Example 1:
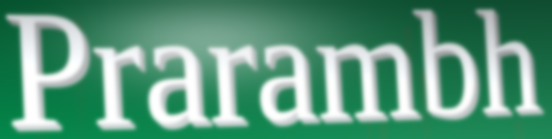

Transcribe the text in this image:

Prarambh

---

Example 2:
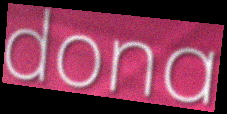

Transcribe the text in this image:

dona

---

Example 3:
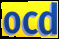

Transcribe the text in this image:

ocd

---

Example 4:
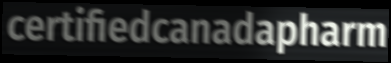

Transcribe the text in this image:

certifiedcanadapharm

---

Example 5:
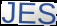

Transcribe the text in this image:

JES